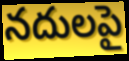
నదులపై